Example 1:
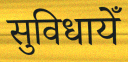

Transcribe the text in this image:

सुविधायेँ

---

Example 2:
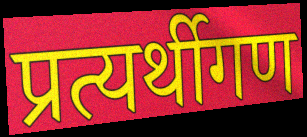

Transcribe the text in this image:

प्रत्यर्थीगण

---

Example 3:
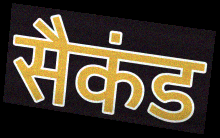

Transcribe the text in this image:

सैकंड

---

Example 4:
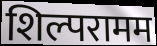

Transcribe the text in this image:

शिल्परामम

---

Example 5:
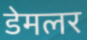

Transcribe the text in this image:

डेमलर